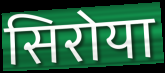
सिरोया